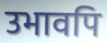
उभावपि